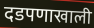
दडपणाखाली